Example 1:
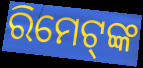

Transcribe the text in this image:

ରିମେଟ୍‍ଙ୍କ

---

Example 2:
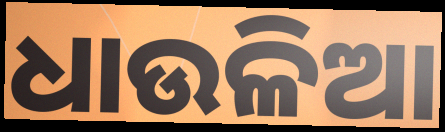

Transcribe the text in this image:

ଧାଉଳିଆ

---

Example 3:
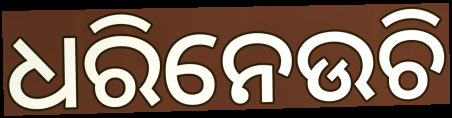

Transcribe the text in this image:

ଧରିନେଉଚି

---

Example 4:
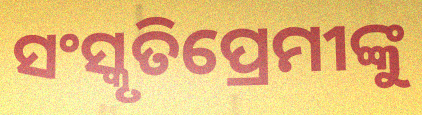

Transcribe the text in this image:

ସଂସ୍କୃତିପ୍ରେମୀଙ୍କୁ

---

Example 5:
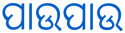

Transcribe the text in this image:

ପାଉପାଉ